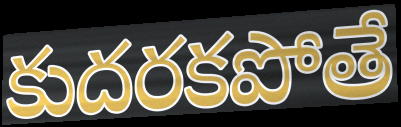
కుదరకపోతే